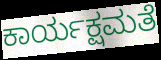
ಕಾರ್ಯಕ್ಷಮತೆ